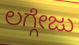
ಲಗ್ಗೇಜು